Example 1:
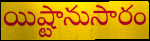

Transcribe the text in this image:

యిష్టానుసారం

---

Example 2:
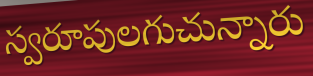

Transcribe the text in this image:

స్వరూపులగుచున్నారు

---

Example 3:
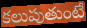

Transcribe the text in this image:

కలుపుతుంటే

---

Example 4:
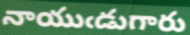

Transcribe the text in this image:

నాయుఁడుగారు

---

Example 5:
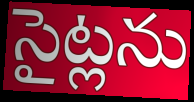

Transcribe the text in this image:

సైట్లను